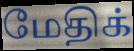
மேதிக்